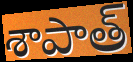
శాపాత్